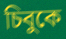
চিবুকে